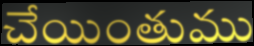
చేయింతుము